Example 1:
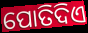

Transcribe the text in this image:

ପୋତିଦିଏ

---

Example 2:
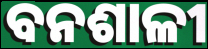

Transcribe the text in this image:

ବନଶାଳୀ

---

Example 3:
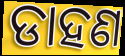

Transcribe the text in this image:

ଡାହଣ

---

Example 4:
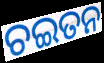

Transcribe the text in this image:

ଚଇତନ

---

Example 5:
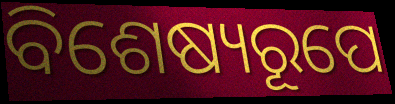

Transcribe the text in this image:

ବିଶେଷ୍ୟରୂପେ